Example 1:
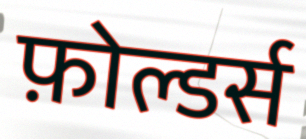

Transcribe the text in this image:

फ़ोल्डर्स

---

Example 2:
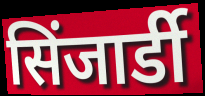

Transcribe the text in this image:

सिंजार्डी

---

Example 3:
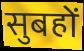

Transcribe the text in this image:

सुबहों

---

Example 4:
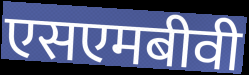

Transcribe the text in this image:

एसएमबीवी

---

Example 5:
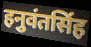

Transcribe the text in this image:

हनुवंतसिंह